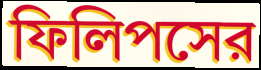
ফিলিপসের